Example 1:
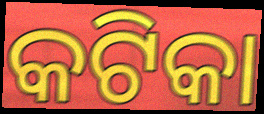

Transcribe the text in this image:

କଟିକା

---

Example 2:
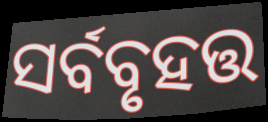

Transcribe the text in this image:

ସର୍ବବୃହତ୍ତ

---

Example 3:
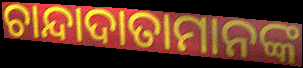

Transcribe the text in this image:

ଚାନ୍ଦାଦାତାମାନଙ୍କ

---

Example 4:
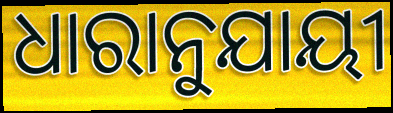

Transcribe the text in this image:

ଧାରାନୁଯାୟୀ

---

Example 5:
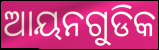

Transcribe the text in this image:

ଆୟନଗୁଡିକ